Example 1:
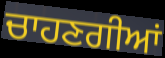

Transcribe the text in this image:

ਚਾਹਣਗੀਆਂ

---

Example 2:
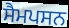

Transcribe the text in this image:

ਸੈਮਪਸਨ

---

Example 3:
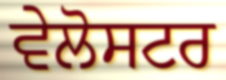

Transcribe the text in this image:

ਵੇਲੋਸਟਰ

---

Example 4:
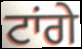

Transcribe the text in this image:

ਟਾਂਗੇ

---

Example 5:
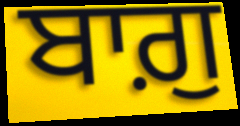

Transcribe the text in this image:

ਬਾਗ਼ੁ